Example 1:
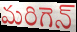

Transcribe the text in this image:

మరిగెన్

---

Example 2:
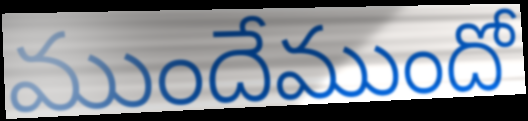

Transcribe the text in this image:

ముందేముందో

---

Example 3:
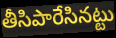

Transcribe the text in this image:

తీసిపారేసినట్టు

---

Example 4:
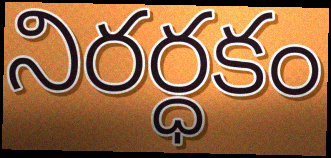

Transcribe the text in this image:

నిరర్ధకం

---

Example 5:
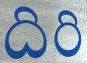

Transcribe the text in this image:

దిరి